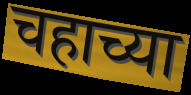
चहाच्या